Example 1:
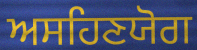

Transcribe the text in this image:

ਅਸਹਿਣਯੋਗ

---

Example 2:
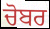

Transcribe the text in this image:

ਚੋਬਰ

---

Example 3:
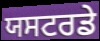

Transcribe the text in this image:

ਯਸਟਰਡੇ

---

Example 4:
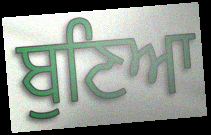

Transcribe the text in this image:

ਬੁਣਿਆ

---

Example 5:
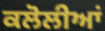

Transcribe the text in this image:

ਕਲੋਲੀਆਂ